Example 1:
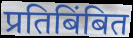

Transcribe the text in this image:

प्रतिबिंबित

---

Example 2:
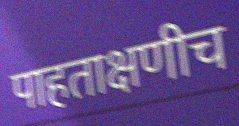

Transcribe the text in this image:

पाहताक्षणीच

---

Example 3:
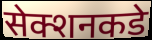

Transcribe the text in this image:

सेक्शनकडे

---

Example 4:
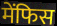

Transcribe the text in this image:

मेंफिस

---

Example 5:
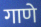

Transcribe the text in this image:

गाणे